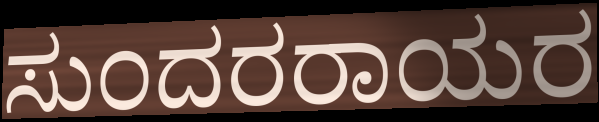
ಸುಂದರರಾಯರ